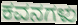
ಕವನಗಳು